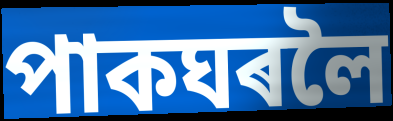
পাকঘৰলৈ